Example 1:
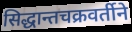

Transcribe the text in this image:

सिद्धान्तचक्रवर्तीने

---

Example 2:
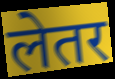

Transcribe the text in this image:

लेतर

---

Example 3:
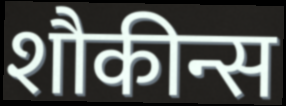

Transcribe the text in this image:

शौकीन्स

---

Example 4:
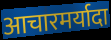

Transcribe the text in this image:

आचारमर्यादा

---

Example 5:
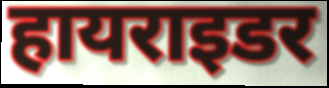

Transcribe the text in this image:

हायराइडर